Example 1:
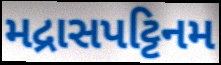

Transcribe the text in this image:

મદ્રાસપટ્ટિનમ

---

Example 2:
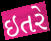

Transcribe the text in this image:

ઇતરે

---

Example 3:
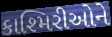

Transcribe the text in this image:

કાશ્મિરીઓને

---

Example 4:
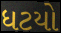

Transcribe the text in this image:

ધટયો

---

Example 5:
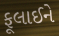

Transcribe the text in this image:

ફૂલાઈને